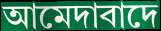
আমেদাবাদে